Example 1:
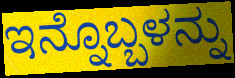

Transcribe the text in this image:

ಇನ್ನೊಬ್ಬಳನ್ನು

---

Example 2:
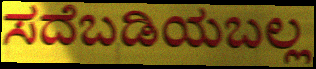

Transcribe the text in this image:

ಸದೆಬಡಿಯಬಲ್ಲ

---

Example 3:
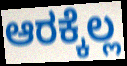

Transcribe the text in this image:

ಆರಕ್ಕೆಲ್ಲ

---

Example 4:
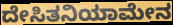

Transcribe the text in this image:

ದೇಸಿತನಿಯಾಮೇನ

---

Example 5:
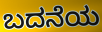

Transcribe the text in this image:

ಬದನೆಯ